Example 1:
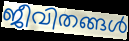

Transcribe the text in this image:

ജീവിതങ്ങൾ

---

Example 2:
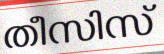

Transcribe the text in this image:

തീസിസ്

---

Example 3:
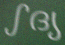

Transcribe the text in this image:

ഽദ്യ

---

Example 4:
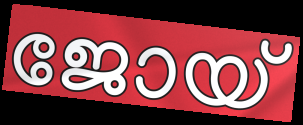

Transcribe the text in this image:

ജോയ്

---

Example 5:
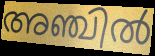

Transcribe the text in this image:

അഞ്ചിൽ